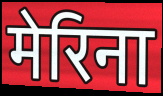
मेरिना